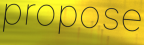
propose